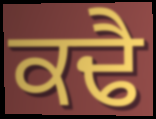
ਕਢੈ